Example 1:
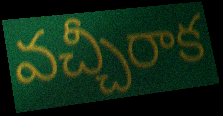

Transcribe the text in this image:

వచ్చీరాక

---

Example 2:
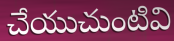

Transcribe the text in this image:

చేయుచుంటివి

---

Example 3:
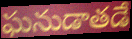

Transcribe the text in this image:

ఘనుడాతడే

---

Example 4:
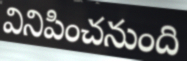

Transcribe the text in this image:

వినిపించనుంది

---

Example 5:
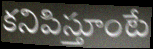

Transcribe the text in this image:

కనిపిస్తూంటే